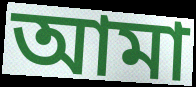
আমা